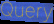
Query